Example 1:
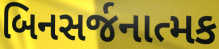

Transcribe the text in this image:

બિનસર્જનાત્મક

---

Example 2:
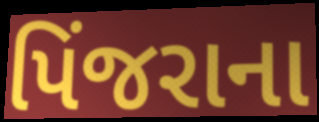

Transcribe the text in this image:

પિંજરાના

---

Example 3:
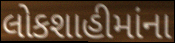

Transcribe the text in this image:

લોકશાહીમાંના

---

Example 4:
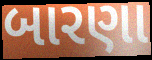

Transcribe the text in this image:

બારણા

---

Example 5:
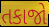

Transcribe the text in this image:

તકાજો